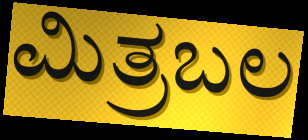
ಮಿತ್ರಬಲ